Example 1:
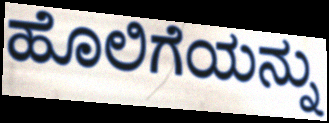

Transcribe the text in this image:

ಹೊಲಿಗೆಯನ್ನು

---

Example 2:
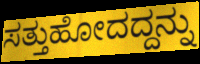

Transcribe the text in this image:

ಸತ್ತುಹೋದದ್ದನ್ನು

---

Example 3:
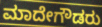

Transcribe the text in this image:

ಮಾದೇಗೌಡರು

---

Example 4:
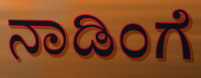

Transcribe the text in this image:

ನಾಡಿಂಗೆ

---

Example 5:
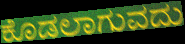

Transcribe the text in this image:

ಕೊಡಲಾಗುವದು